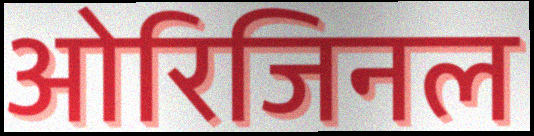
ओरिजिनल